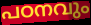
പഠനവും